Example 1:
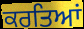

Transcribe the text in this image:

ਕਰਤਿਆਂ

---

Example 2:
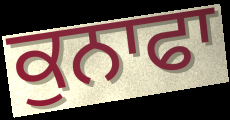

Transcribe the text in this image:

ਕੁਨਾਫਾ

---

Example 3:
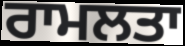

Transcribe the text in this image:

ਰਾਮਲਤਾ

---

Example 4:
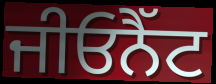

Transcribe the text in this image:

ਜੀਓਨੈੱਟ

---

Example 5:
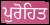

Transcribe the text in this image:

ਪੁਰੋਹਿਤ